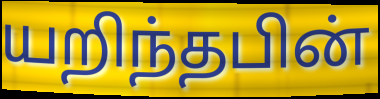
யறிந்தபின்